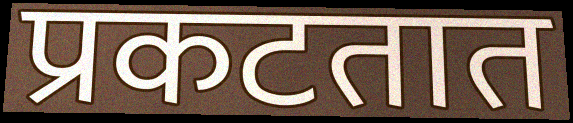
प्रकटतात